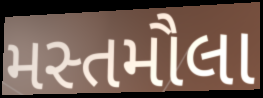
મસ્તમૌલા